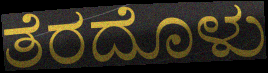
ತೆರದೊಳು